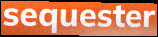
sequester